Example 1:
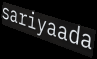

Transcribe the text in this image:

sariyaada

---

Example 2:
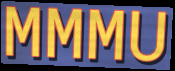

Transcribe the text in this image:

MMMU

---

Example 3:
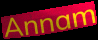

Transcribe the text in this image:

Annam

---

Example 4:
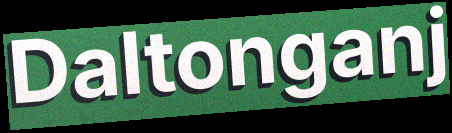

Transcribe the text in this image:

Daltonganj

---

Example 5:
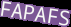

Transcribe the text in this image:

FAPAFS